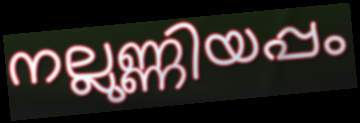
നല്ലുണ്ണിയപ്പം